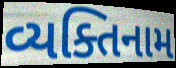
વ્યક્તિનામ